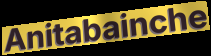
Anitabainche